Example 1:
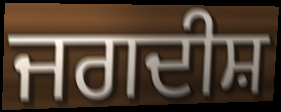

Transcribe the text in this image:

ਜਗਦੀਸ਼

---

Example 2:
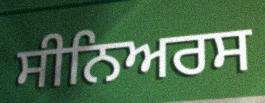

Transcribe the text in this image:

ਸੀਨਿਅਰਸ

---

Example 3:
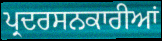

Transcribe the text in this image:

ਪ੍ਰਦਰਸਨਕਾਰੀਆਂ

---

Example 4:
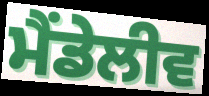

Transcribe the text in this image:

ਮੈਂਡੇਲੀਵ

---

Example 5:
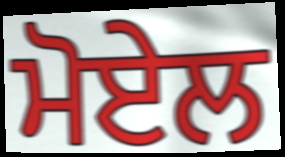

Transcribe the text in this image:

ਮੋਏਲ